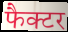
फैक्टर